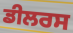
ਡੀਲਰਸ